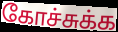
கோச்சுக்க